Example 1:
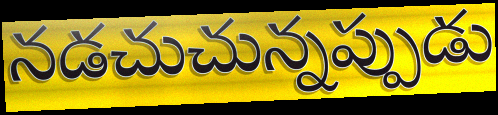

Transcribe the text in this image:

నడచుచున్నప్పుడు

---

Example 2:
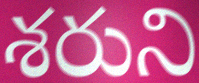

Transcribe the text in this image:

శరుని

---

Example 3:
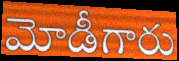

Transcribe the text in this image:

మోడీగారు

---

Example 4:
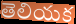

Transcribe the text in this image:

తెలియక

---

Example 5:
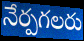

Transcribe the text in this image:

నేర్పగలరు